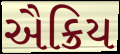
ઐક્રિય